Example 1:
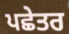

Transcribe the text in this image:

ਪਛੇਤਰ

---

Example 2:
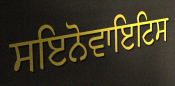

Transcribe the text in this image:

ਸਇਨੋਵਾਇਟਿਸ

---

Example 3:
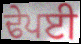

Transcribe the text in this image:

ਢੇਪਈ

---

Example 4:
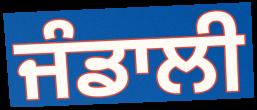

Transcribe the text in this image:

ਜੰਡਾਲੀ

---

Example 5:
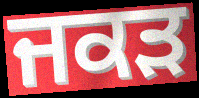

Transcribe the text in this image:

ਜਕੜ